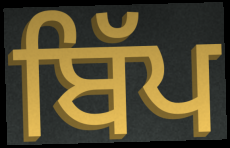
ਬਿੱਪ